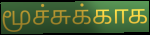
மூச்சுக்காக